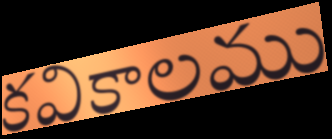
కవికాలము